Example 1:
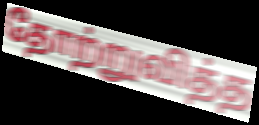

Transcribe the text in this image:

தோற்றுவித்த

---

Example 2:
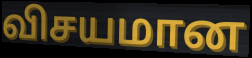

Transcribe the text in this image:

விசயமான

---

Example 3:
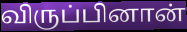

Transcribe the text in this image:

விருப்பினான்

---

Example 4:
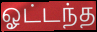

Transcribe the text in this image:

ஓட்டந்த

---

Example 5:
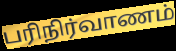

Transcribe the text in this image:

பரிநிர்வாணம்